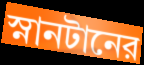
স্নানটানের